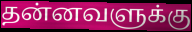
தன்னவளுக்கு